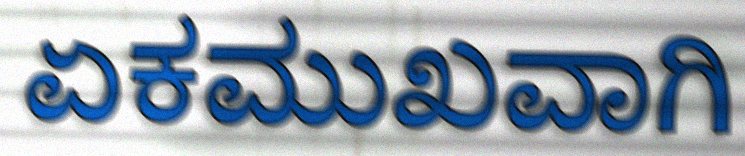
ಏಕಮುಖವಾಗಿ